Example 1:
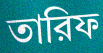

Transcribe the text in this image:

তারিফ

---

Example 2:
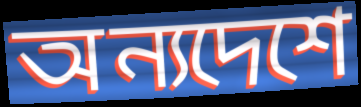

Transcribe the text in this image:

অন্যদেশে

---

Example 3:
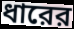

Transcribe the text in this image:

ধারের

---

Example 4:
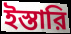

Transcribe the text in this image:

ইস্তারি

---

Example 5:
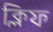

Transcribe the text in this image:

ক্লিফ